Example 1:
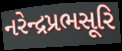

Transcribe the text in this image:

નરેન્દ્રપ્રભસૂરિ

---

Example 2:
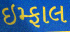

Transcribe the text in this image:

ઇમ્ફાલ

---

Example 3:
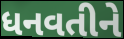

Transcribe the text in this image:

ધનવતીને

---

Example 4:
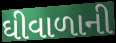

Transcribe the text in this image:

ઘીવાળાની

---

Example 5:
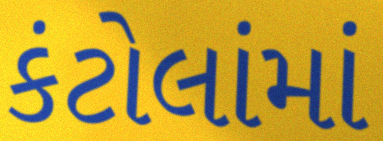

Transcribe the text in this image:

કંટોલાંમાં